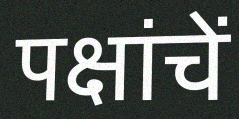
पक्षांचें